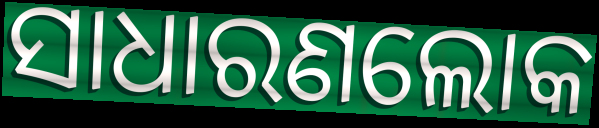
ସାଧାରଣଲୋକ